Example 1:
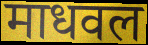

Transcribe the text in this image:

माधवल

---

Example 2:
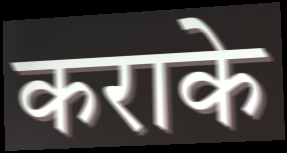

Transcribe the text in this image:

कराके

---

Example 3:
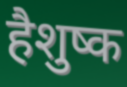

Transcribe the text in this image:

हैशुष्क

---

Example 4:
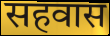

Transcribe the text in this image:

सहवास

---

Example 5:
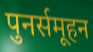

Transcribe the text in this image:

पुनर्समूहन